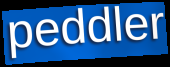
peddler